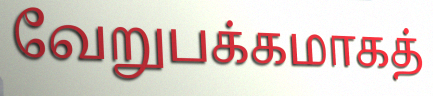
வேறுபக்கமாகத்